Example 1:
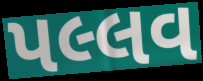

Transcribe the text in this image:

પલ્લવ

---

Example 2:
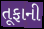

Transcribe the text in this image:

તૂફાની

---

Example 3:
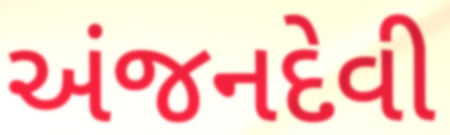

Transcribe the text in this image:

અંજનદેવી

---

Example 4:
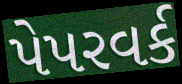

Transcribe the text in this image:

પેપરવર્ક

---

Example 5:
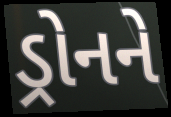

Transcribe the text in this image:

ડ્રોનને